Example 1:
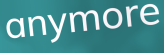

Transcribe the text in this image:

anymore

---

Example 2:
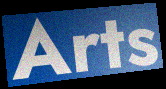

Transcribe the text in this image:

Arts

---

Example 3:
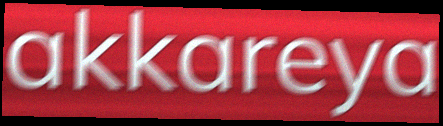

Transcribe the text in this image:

akkareya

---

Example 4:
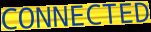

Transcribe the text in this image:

CONNECTED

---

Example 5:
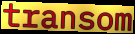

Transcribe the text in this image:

transom